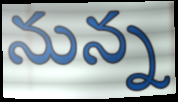
నున్న